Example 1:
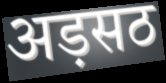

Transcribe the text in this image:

अड़सठ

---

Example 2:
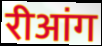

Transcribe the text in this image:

रीआंग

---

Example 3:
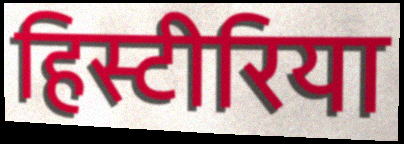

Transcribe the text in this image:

हिस्टीरिया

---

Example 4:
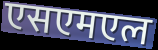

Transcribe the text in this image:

एसएमएल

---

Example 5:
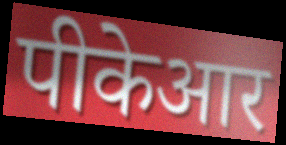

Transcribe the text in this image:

पीकेआर